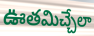
ఊతమిచ్చేలా